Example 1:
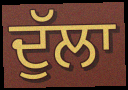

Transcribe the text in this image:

ਦੁੱਲਾ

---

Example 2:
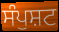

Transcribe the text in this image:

ਸੰਪੁਸ਼ਟ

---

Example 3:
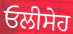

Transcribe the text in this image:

ਓਲੀਸੇਹ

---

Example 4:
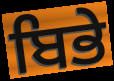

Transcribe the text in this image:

ਬਿਭੇ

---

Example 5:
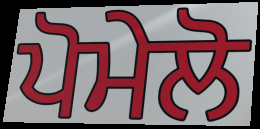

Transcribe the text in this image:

ਪੋਮੇਲੋ